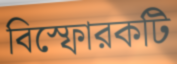
বিস্ফোরকটি